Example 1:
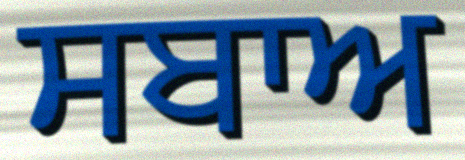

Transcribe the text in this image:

ਸਬਾਅ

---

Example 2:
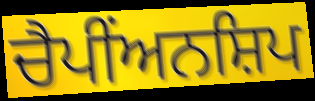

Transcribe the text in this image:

ਚੈਪੀਂਅਨਸ਼ਿਪ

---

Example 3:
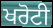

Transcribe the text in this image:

ਖਰੋਟੀ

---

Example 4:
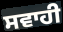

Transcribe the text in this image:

ਸਵਾਹੀ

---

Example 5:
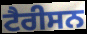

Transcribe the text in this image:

ਟੈਰੀਸਨ